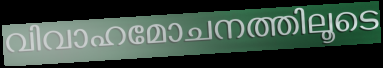
വിവാഹമോചനത്തിലൂടെ